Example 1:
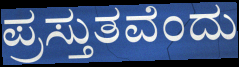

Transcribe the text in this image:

ಪ್ರಸ್ತುತವೆಂದು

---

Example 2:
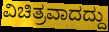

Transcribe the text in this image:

ವಿಚಿತ್ರವಾದದ್ದು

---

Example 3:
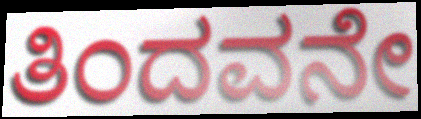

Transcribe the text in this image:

ತಿಂದವನೇ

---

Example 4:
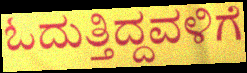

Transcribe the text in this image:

ಓದುತ್ತಿದ್ದವಳಿಗೆ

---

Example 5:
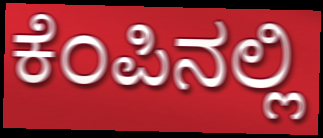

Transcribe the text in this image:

ಕೆಂಪಿನಲ್ಲಿ